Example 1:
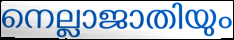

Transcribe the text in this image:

നെല്ലാജാതിയും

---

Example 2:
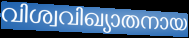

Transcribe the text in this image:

വിശ്വവിഖ്യാതനായ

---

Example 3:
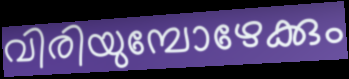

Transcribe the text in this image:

വിരിയുമ്പോഴേക്കും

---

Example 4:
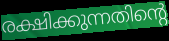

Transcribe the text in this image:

രക്ഷിക്കുന്നതിന്റെ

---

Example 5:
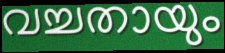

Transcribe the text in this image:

വച്ചതായും